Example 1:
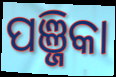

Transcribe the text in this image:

ପଞ୍ଜିକା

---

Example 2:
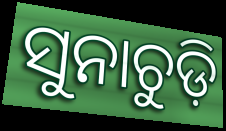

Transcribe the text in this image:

ସୁନାଚୁଡ଼ି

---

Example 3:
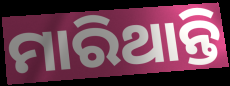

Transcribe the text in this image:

ମାରିଥାନ୍ତି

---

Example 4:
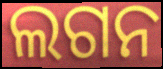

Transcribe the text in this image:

ଲଗନ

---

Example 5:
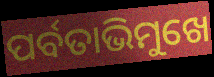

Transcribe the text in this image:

ପର୍ବତାଭିମୁଖେ